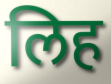
लिह